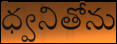
ధ్వనితోను